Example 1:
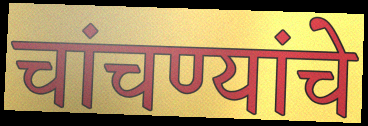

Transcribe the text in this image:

चांचण्यांचे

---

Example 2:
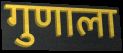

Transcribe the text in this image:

गुणाला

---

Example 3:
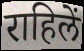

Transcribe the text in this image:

राहिलें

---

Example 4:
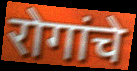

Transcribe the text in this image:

रोगांचे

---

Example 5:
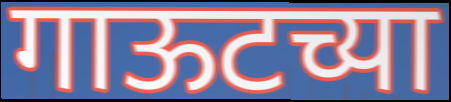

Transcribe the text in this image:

गाऊटच्या